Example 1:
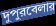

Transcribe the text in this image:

দুপুরবেলার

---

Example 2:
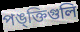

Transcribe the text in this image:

পঙ্ক্তিগুলি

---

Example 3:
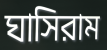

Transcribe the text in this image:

ঘাসিরাম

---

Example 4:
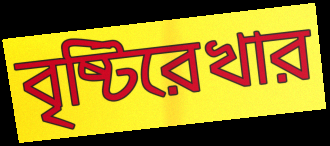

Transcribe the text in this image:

বৃষ্টিরেখার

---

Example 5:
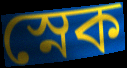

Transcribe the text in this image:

স্নেক